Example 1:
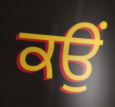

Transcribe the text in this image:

ਕਉਂ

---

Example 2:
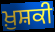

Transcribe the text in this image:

ਖ਼ੁਸ਼ਕੀ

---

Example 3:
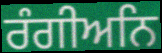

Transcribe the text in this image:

ਰੰਗੀਅਨਿ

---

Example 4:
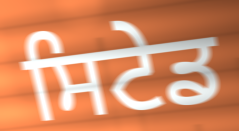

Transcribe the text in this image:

ਸਿਟੇਡ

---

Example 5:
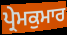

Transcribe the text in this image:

ਪ੍ਰੇਮਕੁਮਾਰ